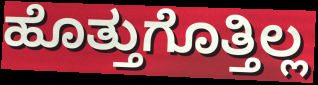
ಹೊತ್ತುಗೊತ್ತಿಲ್ಲ